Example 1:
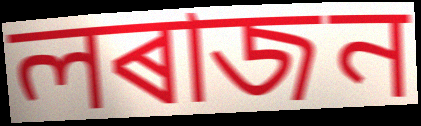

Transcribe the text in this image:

লৰাজন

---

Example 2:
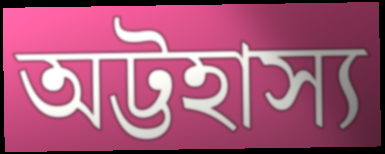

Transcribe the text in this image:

অট্টহাস্য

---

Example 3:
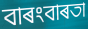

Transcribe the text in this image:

বাৰংবাৰতা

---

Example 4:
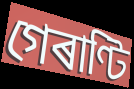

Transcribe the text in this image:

গেৰাণ্টি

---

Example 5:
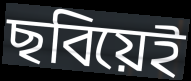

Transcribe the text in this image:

ছবিয়েই